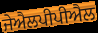
ਜੇਐਲਪੀਪੀਐਲ